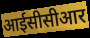
आईसीसीआर